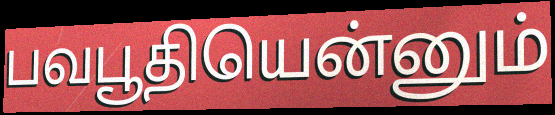
பவபூதியென்னும்